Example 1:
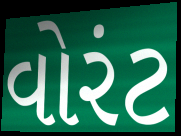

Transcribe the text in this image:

વોરંટ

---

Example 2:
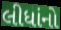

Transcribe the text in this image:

લીધાંનો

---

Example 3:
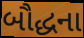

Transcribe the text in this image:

બૌદ્ધના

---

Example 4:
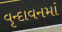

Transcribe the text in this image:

વૃન્દાવનમાં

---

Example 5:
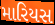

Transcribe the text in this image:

મારિયસ